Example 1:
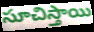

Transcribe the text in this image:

సూచిస్తాయి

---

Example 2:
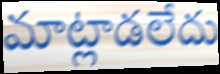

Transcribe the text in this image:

మాట్లాడలేదు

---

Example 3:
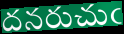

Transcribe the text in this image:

దనరుచుఁ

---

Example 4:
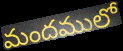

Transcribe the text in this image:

మందములో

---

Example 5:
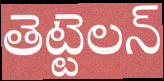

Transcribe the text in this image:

తెట్టెలన్